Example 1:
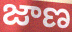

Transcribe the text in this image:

జాణ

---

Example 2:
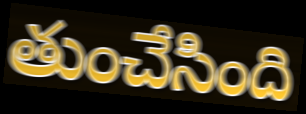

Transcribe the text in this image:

తుంచేసింది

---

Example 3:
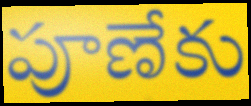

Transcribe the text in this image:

పూణేకు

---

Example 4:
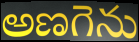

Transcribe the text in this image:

అణగెను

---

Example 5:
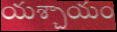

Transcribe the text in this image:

యశ్చాయం